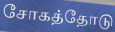
சோகத்தோடு